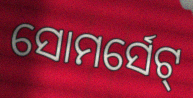
ସୋମର୍ସେଟ୍